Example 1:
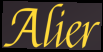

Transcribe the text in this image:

Alier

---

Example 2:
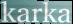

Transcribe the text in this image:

karka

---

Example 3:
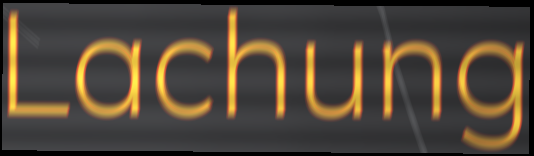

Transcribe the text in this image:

Lachung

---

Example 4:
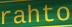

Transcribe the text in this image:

rahto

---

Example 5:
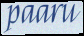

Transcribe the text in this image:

paaru